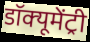
डॉक्‍यूमेंट्री